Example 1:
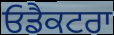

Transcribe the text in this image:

ਓਡੈਕਟਰਾ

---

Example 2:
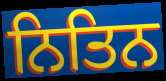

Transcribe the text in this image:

ਨਿਤਿਨ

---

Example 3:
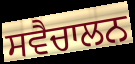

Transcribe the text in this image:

ਸਵੈਚਾਲਨ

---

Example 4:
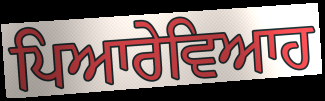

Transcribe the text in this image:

ਪਿਆਰੇਵਿਆਹ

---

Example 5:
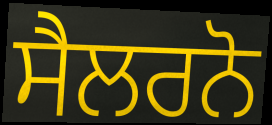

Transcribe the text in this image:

ਸੈਲਰਨੋ